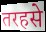
तरहसे